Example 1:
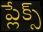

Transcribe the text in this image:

ప్లేక్స్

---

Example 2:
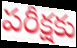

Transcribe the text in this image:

పరీక్షకు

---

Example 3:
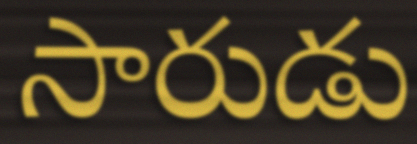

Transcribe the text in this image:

సారుడు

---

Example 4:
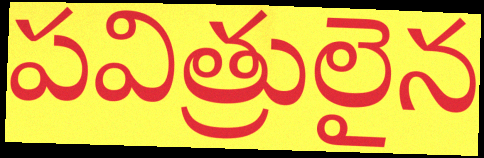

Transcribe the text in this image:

పవిత్రులైన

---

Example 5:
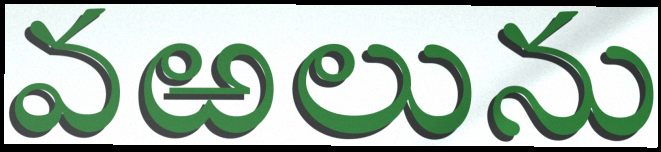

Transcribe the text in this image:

వఱలును